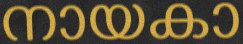
നായകാ